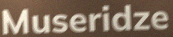
Museridze